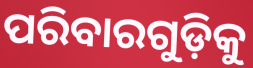
ପରିବାରଗୁଡ଼ିକୁ